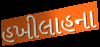
હખીલાહના